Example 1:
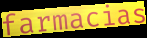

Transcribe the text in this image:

farmacias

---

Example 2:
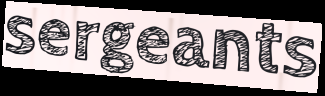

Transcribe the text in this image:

sergeants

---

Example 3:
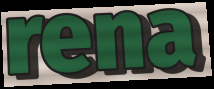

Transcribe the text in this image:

rena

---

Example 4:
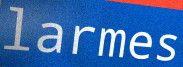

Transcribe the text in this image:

larmes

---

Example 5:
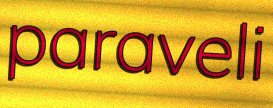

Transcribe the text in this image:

paraveli